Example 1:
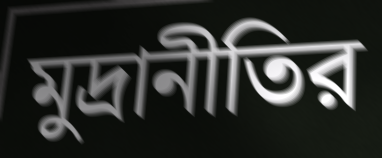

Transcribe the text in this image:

মুদ্রানীতির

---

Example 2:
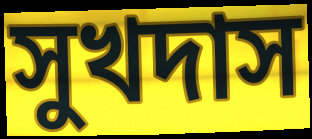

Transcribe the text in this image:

সুখদাস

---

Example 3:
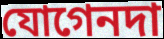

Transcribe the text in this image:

যোগেনদা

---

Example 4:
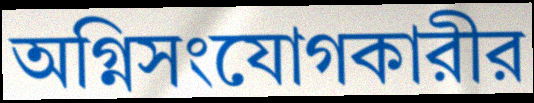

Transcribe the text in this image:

অগ্নিসংযোগকারীর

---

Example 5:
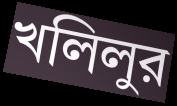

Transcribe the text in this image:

খলিলুর